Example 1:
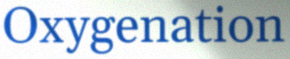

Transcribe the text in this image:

Oxygenation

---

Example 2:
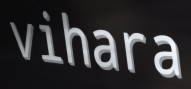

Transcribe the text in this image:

vihara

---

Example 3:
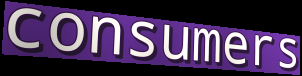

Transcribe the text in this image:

consumers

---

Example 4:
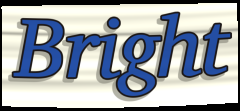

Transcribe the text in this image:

Bright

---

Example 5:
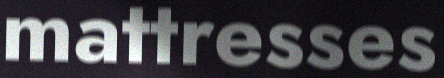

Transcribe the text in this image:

mattresses